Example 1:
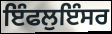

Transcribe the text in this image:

ਇੰਫਲੁਇੰਸਰ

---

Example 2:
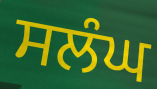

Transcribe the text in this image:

ਸਲੰਘ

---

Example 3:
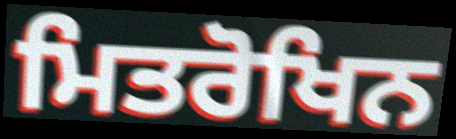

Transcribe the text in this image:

ਮਿਤਰੋਖਿਨ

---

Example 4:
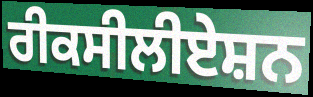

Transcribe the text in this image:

ਰੀਕਸੀਲੀਏਸ਼ਨ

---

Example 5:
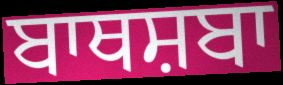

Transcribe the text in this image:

ਬਾਥਸ਼ਬਾ